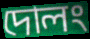
দোলং